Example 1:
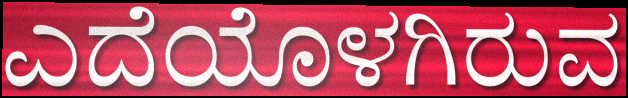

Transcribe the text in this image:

ಎದೆಯೊಳಗಿರುವ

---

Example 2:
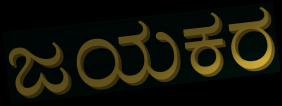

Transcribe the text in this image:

ಜಯಕರ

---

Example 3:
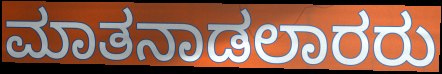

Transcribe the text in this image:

ಮಾತನಾಡಲಾರರು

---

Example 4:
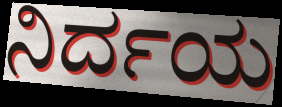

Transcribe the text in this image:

ನಿರ್ದಯ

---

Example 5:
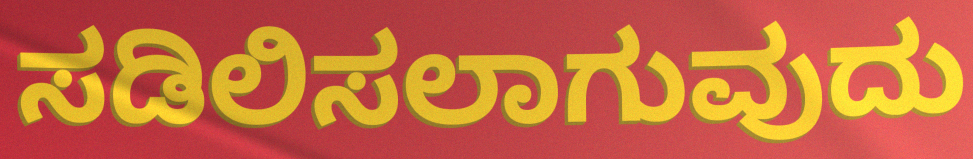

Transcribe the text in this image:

ಸಡಿಲಿಸಲಾಗುವುದು